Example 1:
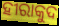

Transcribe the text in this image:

ହୀରାକୁଦ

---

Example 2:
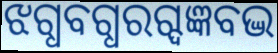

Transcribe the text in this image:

ଝଗ୍ଧବଗ୍ଧରଗ୍ଦଜ୍ଞବଦ୍ଭ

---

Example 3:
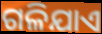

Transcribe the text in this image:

ଗଳିଯାଏ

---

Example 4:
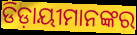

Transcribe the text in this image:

ଡିଡ଼ାୟୀମାନଙ୍କର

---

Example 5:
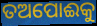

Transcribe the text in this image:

ତଅପୋଈକୁ